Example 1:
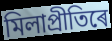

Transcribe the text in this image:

মিলাপ্ৰীতিৰে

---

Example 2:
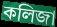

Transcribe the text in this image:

কলিজা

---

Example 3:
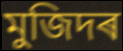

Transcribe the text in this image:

মুজিদৰ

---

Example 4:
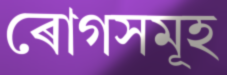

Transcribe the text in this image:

ৰোগসমূহ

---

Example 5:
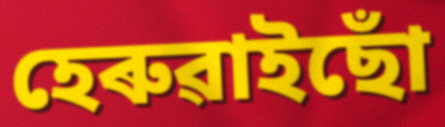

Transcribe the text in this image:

হেৰুৱাইছোঁ